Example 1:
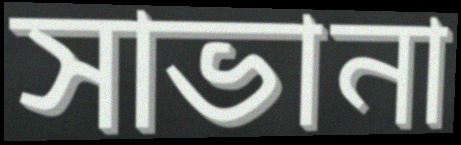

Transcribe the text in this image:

সাভানা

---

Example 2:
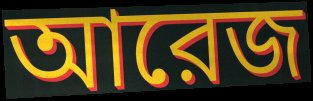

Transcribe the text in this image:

আরেজ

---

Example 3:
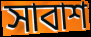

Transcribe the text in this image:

সাবাশ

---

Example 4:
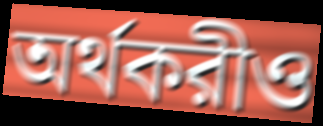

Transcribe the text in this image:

অর্থকরীও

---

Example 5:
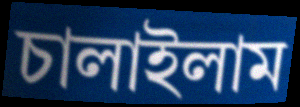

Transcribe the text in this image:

চালাইলাম